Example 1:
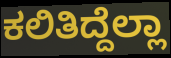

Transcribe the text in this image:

ಕಲಿತಿದ್ದೆಲ್ಲಾ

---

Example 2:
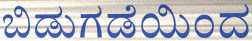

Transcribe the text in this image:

ಬಿಡುಗಡೆಯಿಂದ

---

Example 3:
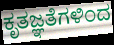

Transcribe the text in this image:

ಕೃತಜ್ಞತೆಗಳಿಂದ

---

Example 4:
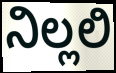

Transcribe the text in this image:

ನಿಲ್ಲಲಿ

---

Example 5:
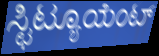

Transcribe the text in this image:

ಸ್ಟಿಟ್ಯೂಯೆಂಟ್